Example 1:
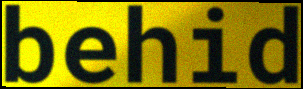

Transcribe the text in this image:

behid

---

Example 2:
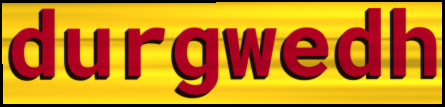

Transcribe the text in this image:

durgwedh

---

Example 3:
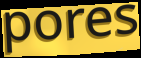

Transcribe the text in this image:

pores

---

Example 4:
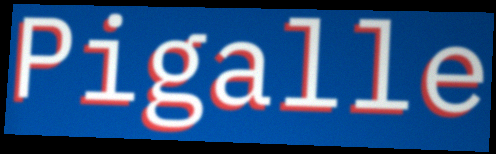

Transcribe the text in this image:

Pigalle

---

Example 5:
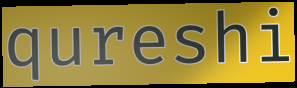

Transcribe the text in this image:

qureshi